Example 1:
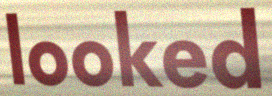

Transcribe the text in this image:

looked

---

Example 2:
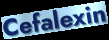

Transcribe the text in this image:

Cefalexin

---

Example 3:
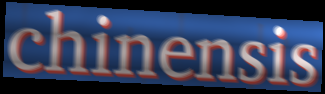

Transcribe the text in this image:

chinensis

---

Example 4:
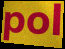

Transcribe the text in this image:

pol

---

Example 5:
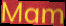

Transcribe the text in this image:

Mam